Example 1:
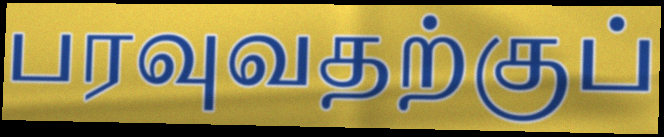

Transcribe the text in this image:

பரவுவதற்குப்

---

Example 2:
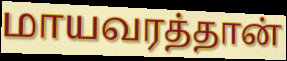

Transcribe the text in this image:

மாயவரத்தான்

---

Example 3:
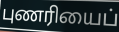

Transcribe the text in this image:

புணரியைப்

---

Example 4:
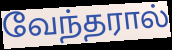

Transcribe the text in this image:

வேந்தரால்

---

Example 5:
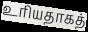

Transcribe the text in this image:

உரியதாகத்